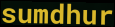
sumdhur